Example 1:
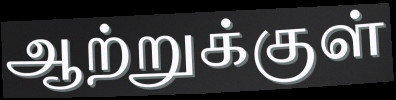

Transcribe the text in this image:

ஆற்றுக்குள்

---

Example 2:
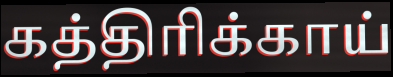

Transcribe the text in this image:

கத்திரிக்காய்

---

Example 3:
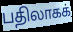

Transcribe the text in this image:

பதிலாகக்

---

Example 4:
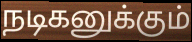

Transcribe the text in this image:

நடிகனுக்கும்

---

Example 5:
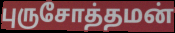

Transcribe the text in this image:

புருசோத்தமன்